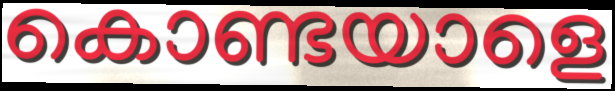
കൊണ്ടയാളെ